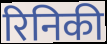
रिनिकी